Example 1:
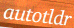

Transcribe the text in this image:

autotldr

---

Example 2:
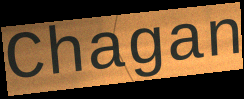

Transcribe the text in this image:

Chagan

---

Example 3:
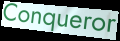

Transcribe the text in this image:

Conqueror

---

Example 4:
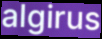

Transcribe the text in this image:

algirus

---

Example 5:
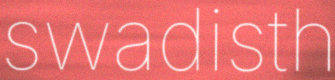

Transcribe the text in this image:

swadisth